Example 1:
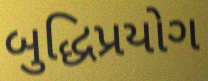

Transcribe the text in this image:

બુદ્ધિપ્રયોગ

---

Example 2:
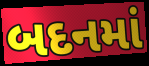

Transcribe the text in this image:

બદનમાં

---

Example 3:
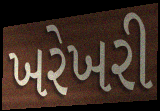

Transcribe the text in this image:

ખરેખરી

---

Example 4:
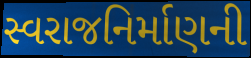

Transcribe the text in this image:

સ્વરાજનિર્માણની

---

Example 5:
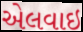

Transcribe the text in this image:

એલવાઇ